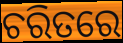
ଚରିତରେ